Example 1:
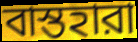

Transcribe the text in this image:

বাস্তহারা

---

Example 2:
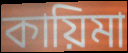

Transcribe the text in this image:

কায়িমা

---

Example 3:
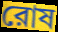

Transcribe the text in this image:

রোষ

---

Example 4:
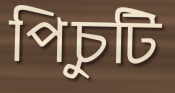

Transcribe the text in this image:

পিচুটি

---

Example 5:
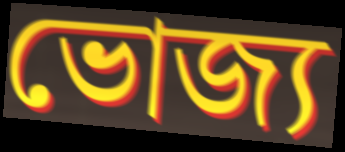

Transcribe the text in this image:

ভোজ্য